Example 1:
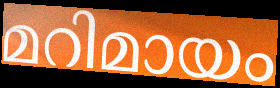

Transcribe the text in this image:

മറിമായം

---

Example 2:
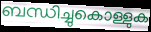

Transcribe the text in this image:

ബന്ധിച്ചുകൊള്ളുക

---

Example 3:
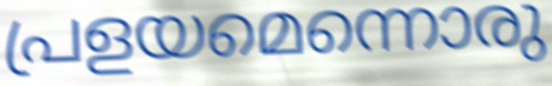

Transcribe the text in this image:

പ്രളയമെന്നൊരു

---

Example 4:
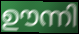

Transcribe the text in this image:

ഊന്നി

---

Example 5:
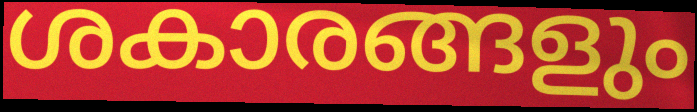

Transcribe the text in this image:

ശകാരങ്ങളും